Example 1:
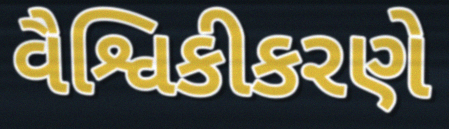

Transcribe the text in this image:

વૈશ્વિકીકરણે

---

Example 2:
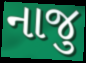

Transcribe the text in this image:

નાજુ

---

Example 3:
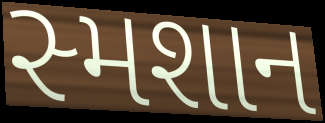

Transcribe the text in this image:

સ્મશાન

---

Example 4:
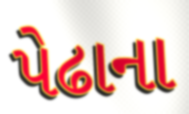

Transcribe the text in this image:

પેઢાના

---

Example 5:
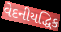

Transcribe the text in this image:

વેદનીયદ્ધિક